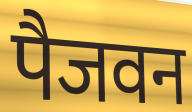
पैजवन